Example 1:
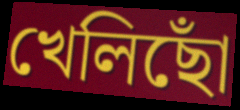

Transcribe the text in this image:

খেলিছোঁ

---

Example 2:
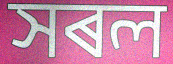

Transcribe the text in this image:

সৰল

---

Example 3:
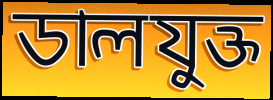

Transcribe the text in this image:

ডালযুক্ত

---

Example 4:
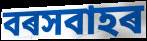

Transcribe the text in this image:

বৰসবাহৰ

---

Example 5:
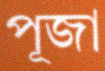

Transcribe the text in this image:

পূজা